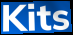
Kits